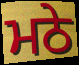
ਮਠੇ